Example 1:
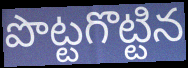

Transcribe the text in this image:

పొట్టగొట్టిన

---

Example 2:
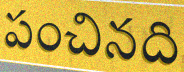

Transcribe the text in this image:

పంచినది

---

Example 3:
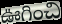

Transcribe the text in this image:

ఊగించి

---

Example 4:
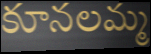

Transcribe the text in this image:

కూనలమ్మ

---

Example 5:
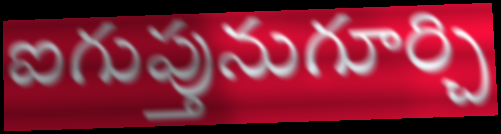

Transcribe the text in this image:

ఐగుప్తునుగూర్చి